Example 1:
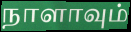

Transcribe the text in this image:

நாளாவும்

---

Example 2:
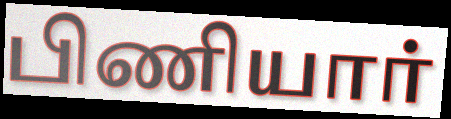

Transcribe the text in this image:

பிணியார்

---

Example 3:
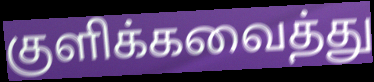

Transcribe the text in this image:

குளிக்கவைத்து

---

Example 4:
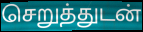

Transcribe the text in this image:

செறுத்துடன்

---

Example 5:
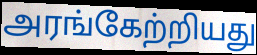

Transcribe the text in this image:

அரங்கேற்றியது